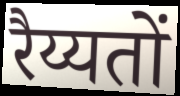
रैय्यतों